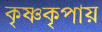
কৃষ্ণকৃপায়